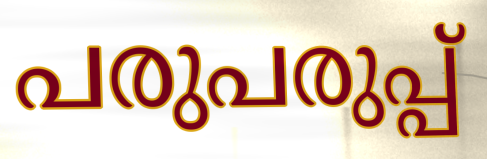
പരുപരുപ്പ്